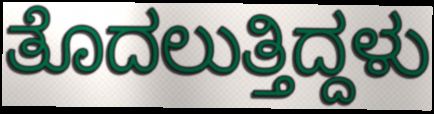
ತೊದಲುತ್ತಿದ್ದಳು